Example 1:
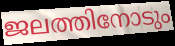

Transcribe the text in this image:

ജലത്തിനോടും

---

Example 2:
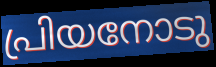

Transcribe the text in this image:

പ്രിയനോടു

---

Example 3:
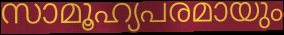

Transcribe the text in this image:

സാമൂഹ്യപരമായും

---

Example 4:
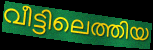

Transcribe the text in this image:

വീട്ടിലെത്തിയ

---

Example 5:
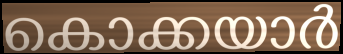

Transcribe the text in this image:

കൊക്കയാർ